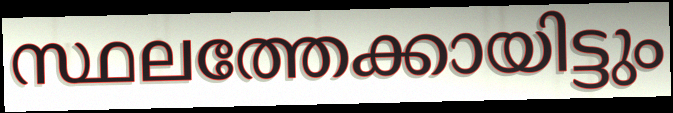
സ്ഥലത്തേക്കായിട്ടും